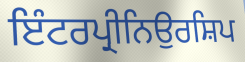
ਇੰਟਰਪ੍ਰੀਨਿਉਰਸ਼ਿਪ